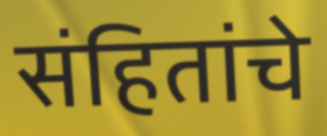
संहितांचे